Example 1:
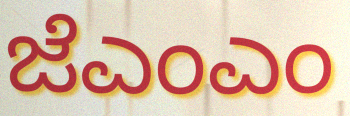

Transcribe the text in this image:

ಜೆಎಂಎಂ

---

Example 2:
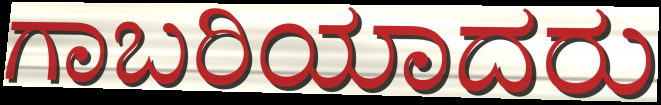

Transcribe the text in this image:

ಗಾಬರಿಯಾದರು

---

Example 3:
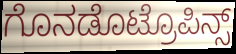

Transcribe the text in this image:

ಗೊನಡೊಟ್ರೊಪಿನ್ಸ್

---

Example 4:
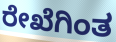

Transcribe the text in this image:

ರೇಖೆಗಿಂತ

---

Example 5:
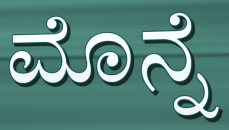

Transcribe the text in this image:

ಮೊನ್ನೆ